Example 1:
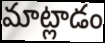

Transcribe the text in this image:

మాట్లాడం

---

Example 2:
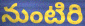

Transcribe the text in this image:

నుంటిరి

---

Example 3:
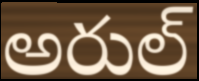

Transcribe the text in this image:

అరుల్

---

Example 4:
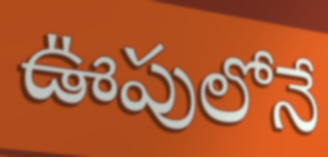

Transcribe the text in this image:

ఊపులోనే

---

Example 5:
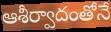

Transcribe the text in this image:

ఆశీర్వాదంతోనే